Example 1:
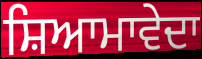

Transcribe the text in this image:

ਸ਼ਿਆਮਾਵੇਦਾ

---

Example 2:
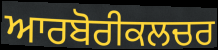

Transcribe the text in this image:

ਆਰਬੋਰੀਕਲਚਰ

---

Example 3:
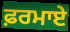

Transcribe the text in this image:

ਫ਼ਰਮਾਏ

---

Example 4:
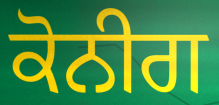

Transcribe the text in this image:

ਕੋਨੀਗ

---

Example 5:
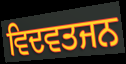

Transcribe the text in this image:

ਵਿਦਵਤਜਨ